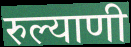
रुल्याणी